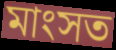
মাংসত